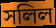
সলিল